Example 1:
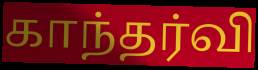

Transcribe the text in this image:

காந்தர்வி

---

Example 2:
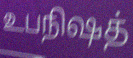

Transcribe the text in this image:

உபநிஷத்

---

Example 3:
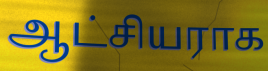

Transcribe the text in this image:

ஆட்சியராக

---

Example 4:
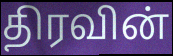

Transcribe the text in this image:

திரவின்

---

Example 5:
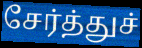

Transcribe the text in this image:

சேர்த்துச்